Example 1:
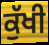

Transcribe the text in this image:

ਕੁੱਖੀ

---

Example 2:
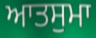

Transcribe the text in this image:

ਆਤਸੁਮਾ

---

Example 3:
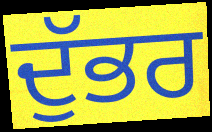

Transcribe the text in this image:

ਦੁੱਭਰ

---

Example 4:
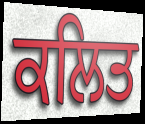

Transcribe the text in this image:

ਕਲਿਤ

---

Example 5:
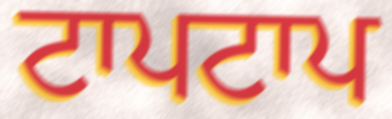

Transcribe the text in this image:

ਟਾਪਟਾਪ